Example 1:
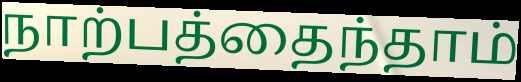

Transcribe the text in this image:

நாற்பத்தைந்தாம்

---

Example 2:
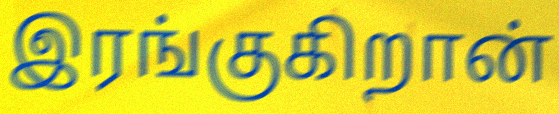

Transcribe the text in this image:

இரங்குகிறான்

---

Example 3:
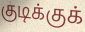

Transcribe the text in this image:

குடிக்குக்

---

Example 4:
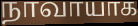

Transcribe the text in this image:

நாவாயாக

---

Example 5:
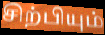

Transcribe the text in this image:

சிற்பியும்